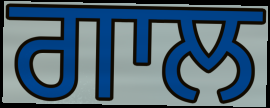
ਗਾਲ